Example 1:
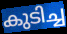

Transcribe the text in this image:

കുടിച്ച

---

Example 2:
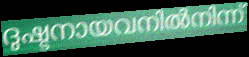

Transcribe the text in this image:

ദുഷ്ടനായവനിൽനിന്ന്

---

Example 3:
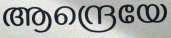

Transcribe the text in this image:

ആന്ദ്രെയേ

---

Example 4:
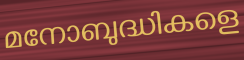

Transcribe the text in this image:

മനോബുദ്ധികളെ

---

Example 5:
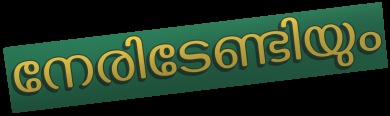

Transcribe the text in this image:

നേരിടേണ്ടിയും